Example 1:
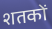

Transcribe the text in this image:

शतकों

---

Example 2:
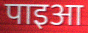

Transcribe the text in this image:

पाइआ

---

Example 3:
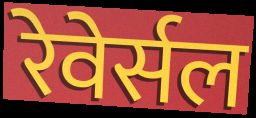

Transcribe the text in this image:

रेवेर्सल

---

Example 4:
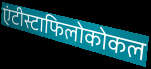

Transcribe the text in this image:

एंटीस्टाफिलोकोकल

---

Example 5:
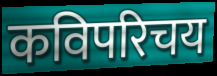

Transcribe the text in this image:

कविपरिचय